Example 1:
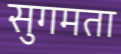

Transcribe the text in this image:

सुगमता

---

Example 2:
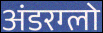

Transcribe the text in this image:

अंडरग्लो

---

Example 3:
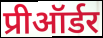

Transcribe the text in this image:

प्रीऑर्डर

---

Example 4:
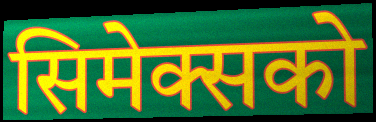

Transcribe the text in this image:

सिमेक्सको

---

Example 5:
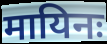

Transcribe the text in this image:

मायिनः